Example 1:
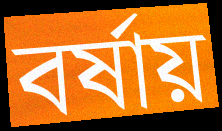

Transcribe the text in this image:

বর্ষায়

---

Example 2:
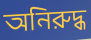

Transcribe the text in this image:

অনিরুদ্ধ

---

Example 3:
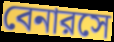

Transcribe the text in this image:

বেনারসে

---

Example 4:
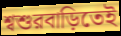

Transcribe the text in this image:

শ্বশুরবাড়িতেই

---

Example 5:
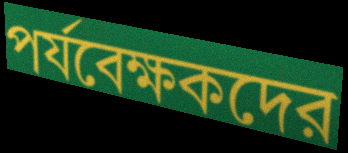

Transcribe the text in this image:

পর্যবেক্ষকদের